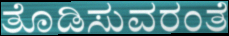
ತೊಡಿಸುವರಂತೆ